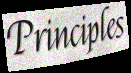
Principles